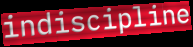
indiscipline